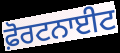
ਫ਼ੋਰਟਨਾਈਟ